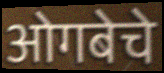
ओगबेचे